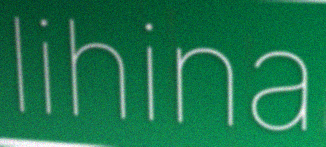
lihina